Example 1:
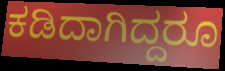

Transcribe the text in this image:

ಕಡಿದಾಗಿದ್ದರೂ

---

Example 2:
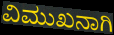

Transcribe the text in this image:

ವಿಮುಖನಾಗಿ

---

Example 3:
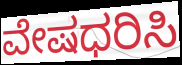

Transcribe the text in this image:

ವೇಷಧರಿಸಿ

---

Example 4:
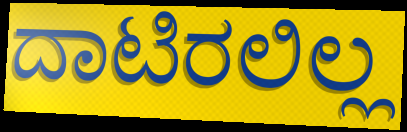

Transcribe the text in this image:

ದಾಟಿರಲಿಲ್ಲ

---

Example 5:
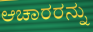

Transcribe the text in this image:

ಆಚಾರರನ್ನು